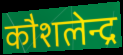
कौशलेन्द्र